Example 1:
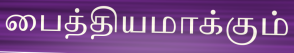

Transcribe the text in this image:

பைத்தியமாக்கும்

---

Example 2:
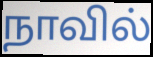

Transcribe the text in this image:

நாவில்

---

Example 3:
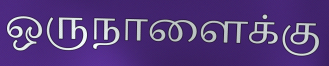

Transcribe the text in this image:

ஒருநாளைக்கு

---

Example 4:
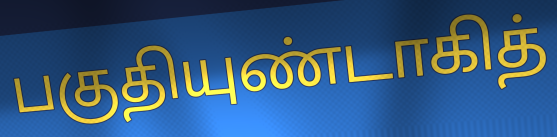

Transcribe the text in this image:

பகுதியுண்டாகித்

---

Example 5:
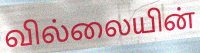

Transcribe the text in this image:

வில்லையின்